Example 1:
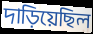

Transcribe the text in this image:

দাড়িয়েছিল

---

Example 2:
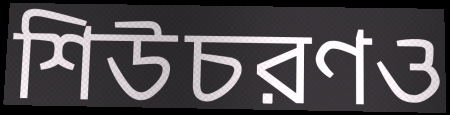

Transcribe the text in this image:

শিউচরণও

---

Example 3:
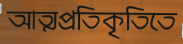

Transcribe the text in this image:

আত্মপ্রতিকৃতিতে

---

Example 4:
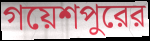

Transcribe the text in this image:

গয়েশপুরের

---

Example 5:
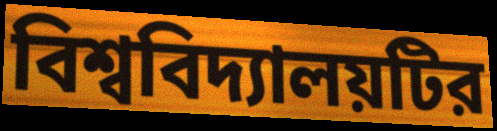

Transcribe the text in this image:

বিশ্ববিদ্যালয়টির